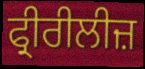
ਫ੍ਰੀਰੀਲੀਜ਼